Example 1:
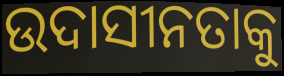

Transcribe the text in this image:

ଉଦାସୀନତାକୁ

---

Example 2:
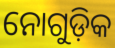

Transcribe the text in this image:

ନୋଗୁଡ଼ିକ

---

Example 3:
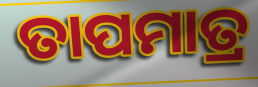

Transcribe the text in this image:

ତାପମାତ୍ର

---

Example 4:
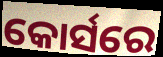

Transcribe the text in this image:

କୋର୍ସରେ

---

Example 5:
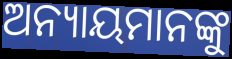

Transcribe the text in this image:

ଅନ୍ୟାୟମାନଙ୍କୁ